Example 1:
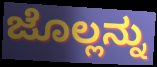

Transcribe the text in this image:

ಜೊಲ್ಲನ್ನು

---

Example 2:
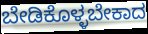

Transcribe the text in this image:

ಬೇಡಿಕೊಳ್ಳಬೇಕಾದ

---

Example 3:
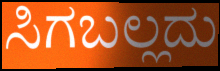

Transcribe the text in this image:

ಸಿಗಬಲ್ಲದು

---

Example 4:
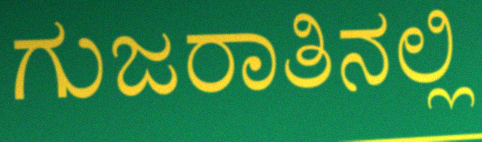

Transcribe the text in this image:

ಗುಜರಾತಿನಲ್ಲಿ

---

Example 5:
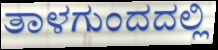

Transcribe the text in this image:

ತಾಳಗುಂದದಲ್ಲಿ